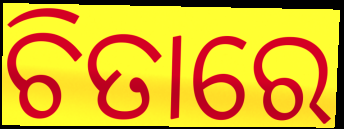
ଚିତାରେ